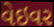
વેઇવર